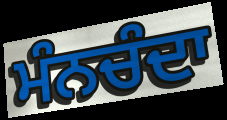
ਮੰਨਚੰਦਾ